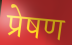
प्रेषण